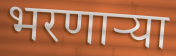
भरणाऱ्या